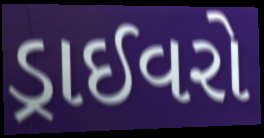
ડ્રાઈવરો